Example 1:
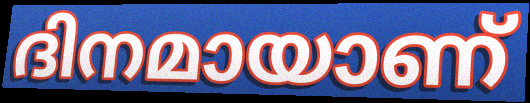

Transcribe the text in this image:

ദിനമായാണ്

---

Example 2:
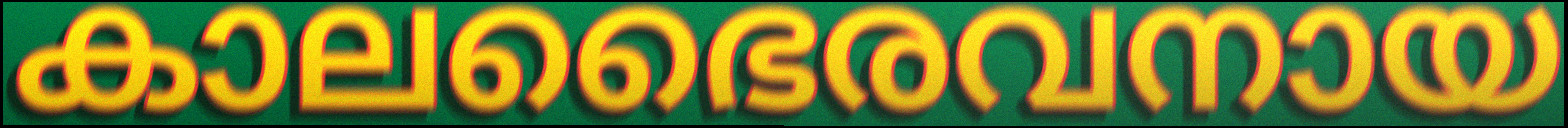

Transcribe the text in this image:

കാലഭൈരവനായ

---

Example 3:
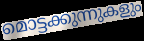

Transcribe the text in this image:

മൊട്ടക്കുന്നുകളും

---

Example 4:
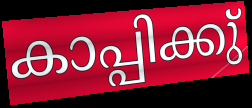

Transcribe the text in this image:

കാപ്പിക്കു്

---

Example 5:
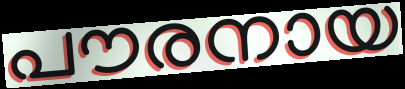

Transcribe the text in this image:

പൗരനായ